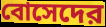
বোসেদের